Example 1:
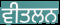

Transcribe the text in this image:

ਵੀਤਲਨ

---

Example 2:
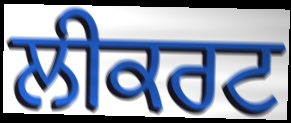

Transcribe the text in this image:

ਲੀਕਰਟ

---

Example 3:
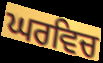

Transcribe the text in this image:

ਘਰਵਿਚ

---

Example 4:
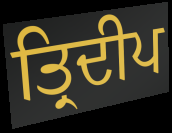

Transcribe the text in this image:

ਤ੍ਰਿਦੀਪ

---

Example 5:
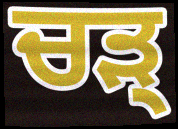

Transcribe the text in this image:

ਚੜ੍